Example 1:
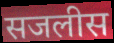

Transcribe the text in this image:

सजलीस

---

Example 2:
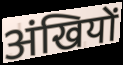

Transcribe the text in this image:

अंखियों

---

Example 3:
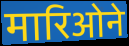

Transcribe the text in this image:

मारिओने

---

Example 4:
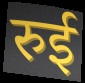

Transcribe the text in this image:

रुई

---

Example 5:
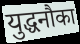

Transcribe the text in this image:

युद्धनौका